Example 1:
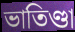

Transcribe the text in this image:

ভাতিণ্ডা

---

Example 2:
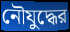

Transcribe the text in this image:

নৌযুদ্ধের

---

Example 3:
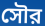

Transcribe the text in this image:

সৌর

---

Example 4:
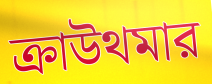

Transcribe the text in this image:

ক্রাউথমার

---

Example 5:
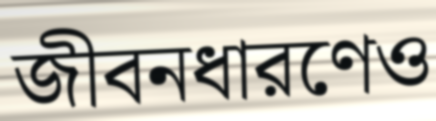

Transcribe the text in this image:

জীবনধারণেও